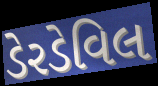
ડેરડેવિલ